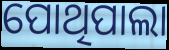
ପୋଥିପାଲା